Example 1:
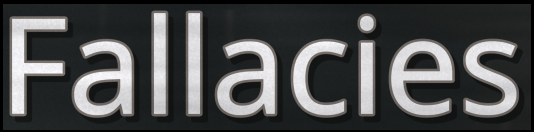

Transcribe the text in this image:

Fallacies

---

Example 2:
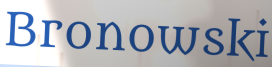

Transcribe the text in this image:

Bronowski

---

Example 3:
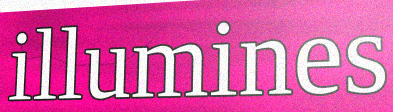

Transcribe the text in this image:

illumines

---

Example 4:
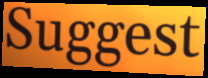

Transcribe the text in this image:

Suggest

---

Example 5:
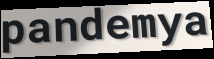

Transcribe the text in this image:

pandemya